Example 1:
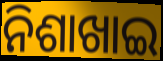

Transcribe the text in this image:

ନିଶାଖାଇ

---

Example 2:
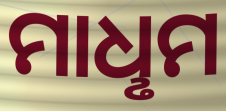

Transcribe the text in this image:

ମାଧୢମ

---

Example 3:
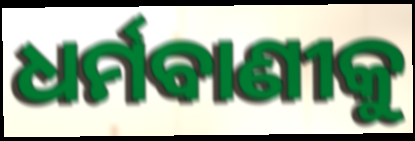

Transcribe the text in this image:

ଧର୍ମବାଣୀକୁ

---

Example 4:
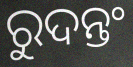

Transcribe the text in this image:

ରୁଦନ୍ତଂ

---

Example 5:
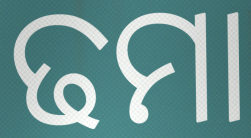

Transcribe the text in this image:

ଢମା